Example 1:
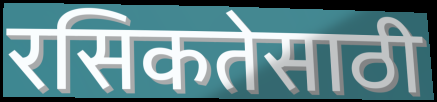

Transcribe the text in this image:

रसिकतेसाठी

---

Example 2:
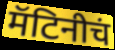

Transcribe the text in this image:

मॅटिनीचं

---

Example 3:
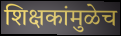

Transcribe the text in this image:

शिक्षकांमुळेच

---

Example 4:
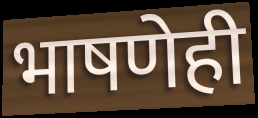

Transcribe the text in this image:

भाषणेही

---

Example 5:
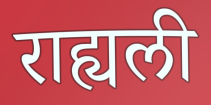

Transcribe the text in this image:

राह्यली